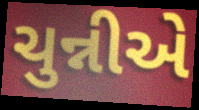
ચુન્નીએ